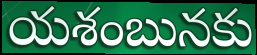
యశంబునకు